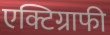
एक्टिग्राफी